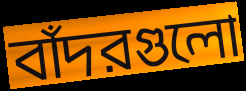
বাঁদরগুলো